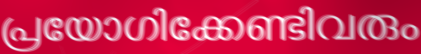
പ്രയോഗിക്കേണ്ടിവരും